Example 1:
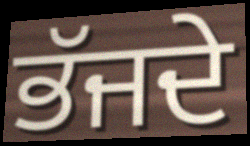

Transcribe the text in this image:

ਭੱਜਦੇ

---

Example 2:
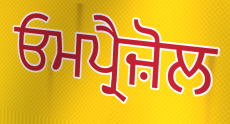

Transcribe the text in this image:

ਓਮਪ੍ਰੈਜ਼ੋਲ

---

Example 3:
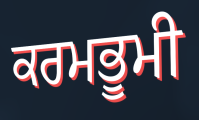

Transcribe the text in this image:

ਕਰਮਭੂਮੀ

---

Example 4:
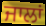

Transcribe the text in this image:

ਜਾਲਾਂ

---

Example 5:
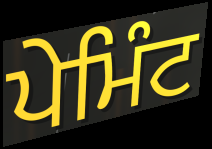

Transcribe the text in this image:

ਪੇਮਿੰਟ